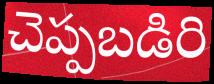
చెప్పబడిరి